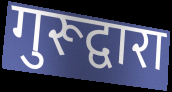
गुरूद्वारा